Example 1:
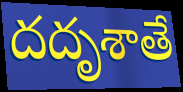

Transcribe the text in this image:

దదృశాతే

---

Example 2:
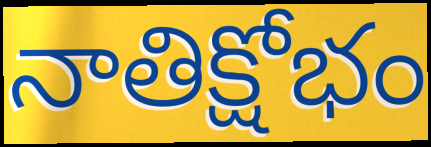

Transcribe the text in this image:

నాతిక్షోభం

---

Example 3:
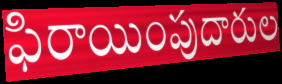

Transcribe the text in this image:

ఫిరాయింపుదారుల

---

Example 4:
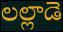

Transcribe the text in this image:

లల్లాడె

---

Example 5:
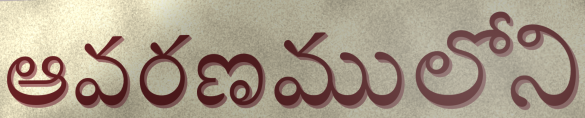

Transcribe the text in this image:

ఆవరణములోని